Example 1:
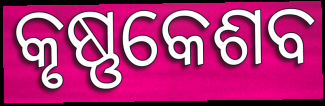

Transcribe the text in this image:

କୃଷ୍ଣକେଶବ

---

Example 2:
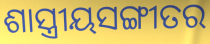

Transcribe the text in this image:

ଶାସ୍ତ୍ରୀୟସଙ୍ଗୀତର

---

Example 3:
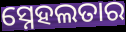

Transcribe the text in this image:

ସ୍ନେହଲତାର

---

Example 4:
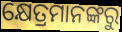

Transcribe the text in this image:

କ୍ଷେତ୍ରମାନଙ୍କରୁ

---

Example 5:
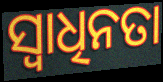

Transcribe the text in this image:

ସ୍ୱାଧିନତା